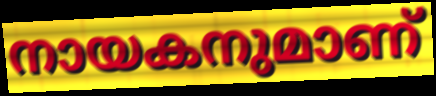
നായകനുമാണ്